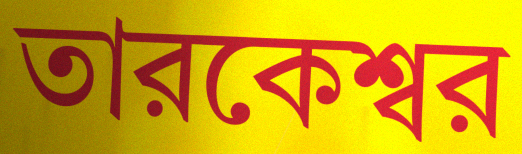
তারকেশ্বর